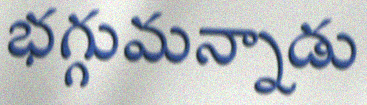
భగ్గుమన్నాడు